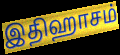
இதிஹாசம்